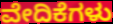
ವೇದಿಕೆಗಳು